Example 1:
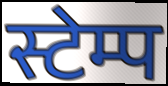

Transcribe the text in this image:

स्टेम्प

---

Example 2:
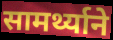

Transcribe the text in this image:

सामर्थ्याने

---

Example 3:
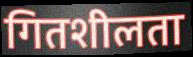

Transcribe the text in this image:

गितशीलता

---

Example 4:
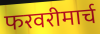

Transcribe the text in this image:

फरवरीमार्च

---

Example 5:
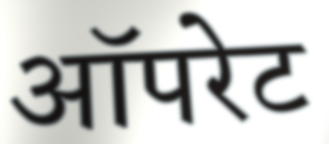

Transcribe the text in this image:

ऑपरेट